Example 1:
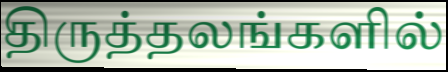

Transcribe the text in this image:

திருத்தலங்களில்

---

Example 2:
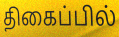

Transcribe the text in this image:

திகைப்பில்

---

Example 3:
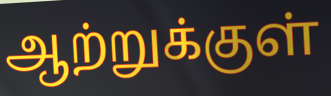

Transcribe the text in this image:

ஆற்றுக்குள்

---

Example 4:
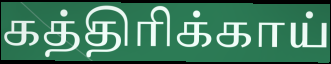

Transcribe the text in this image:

கத்திரிக்காய்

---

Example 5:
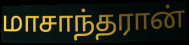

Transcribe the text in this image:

மாசாந்தரான்